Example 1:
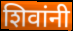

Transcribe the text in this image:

शिवांनी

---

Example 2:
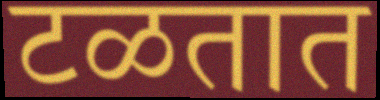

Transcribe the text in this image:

टळतात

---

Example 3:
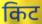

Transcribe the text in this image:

किट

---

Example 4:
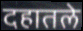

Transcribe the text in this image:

दहातले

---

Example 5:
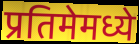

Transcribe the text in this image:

प्रतिमेमध्ये